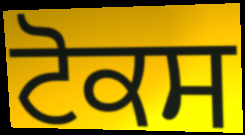
ਟੋਕਸ